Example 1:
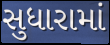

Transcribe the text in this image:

સુધારામાં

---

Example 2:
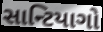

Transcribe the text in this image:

સાન્ટિયાગો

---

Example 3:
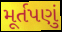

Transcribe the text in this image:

મૂર્તપણું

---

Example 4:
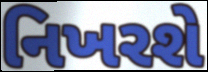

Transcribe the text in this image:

નિખરશે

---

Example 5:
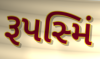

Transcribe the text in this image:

રૂપસ્મિં